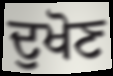
ਦੁਖੋਣ